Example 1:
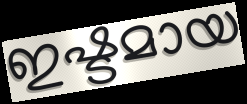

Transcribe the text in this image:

ഇഷ്ടമായ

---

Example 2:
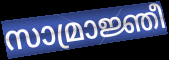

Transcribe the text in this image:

സാമ്രാജ്ഞീ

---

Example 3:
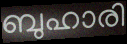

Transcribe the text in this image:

ബുഹാരി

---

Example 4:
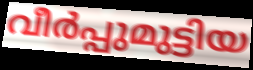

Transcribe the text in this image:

വീർപ്പുമുട്ടിയ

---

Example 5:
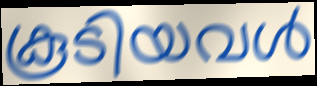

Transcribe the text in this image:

കൂടിയവൾ